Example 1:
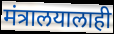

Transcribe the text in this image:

मंत्रालयालाही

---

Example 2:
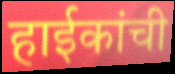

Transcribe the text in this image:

हाईकांची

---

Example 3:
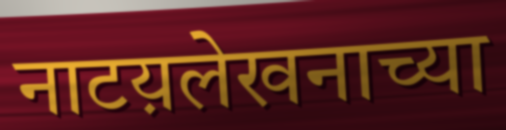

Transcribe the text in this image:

नाटय़लेखनाच्या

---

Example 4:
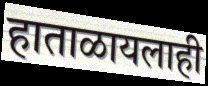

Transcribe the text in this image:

हाताळायलाही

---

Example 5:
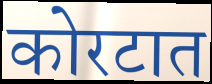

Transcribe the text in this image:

कोरटात